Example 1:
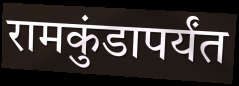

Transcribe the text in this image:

रामकुंडापर्यंत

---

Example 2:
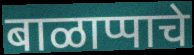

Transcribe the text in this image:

बाळाप्पाचे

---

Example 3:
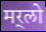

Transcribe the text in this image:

मर्लो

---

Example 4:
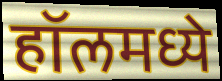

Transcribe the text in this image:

हॉलमध्ये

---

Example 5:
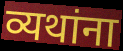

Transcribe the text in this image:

व्यथांना